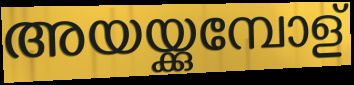
അയയ്ക്കുമ്പോള്